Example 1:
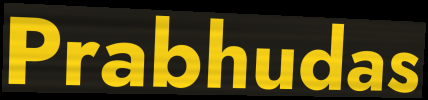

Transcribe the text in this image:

Prabhudas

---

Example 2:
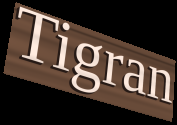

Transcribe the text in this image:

Tigran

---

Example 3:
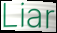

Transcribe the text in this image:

Liar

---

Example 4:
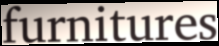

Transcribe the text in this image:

furnitures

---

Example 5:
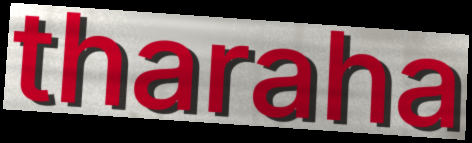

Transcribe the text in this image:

tharaha